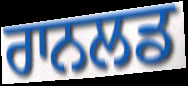
ਰਾਨਲਡ